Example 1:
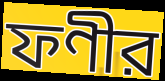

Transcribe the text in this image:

ফণীর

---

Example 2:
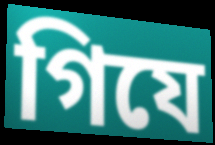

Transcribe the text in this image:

গিযে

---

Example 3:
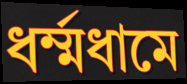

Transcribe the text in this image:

ধর্ম্মধামে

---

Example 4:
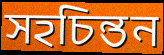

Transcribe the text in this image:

সহচিন্তন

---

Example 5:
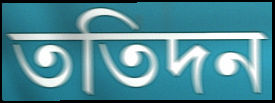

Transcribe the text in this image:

ততিদন